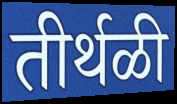
तीर्थळी